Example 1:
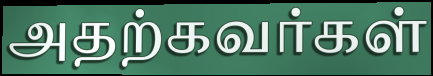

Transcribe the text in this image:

அதற்கவர்கள்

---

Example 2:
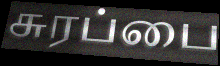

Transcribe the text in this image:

சுரப்பை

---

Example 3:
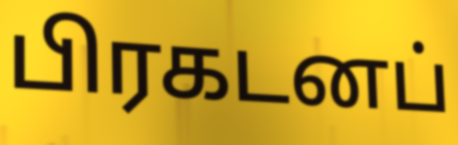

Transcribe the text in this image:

பிரகடனப்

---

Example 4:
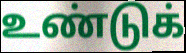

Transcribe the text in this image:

உண்டுக்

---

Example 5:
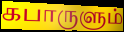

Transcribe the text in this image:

கபாருளும்